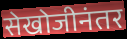
सेखोजीनंतर